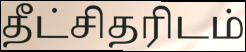
தீட்சிதரிடம்